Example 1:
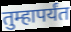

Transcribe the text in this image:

तुम्हापर्यंत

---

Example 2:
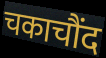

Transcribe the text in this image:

चकाचौंद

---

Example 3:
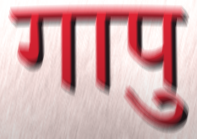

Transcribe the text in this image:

गापु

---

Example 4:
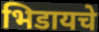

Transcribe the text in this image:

भिडायचे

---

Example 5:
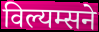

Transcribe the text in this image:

विल्यम्सने